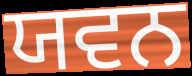
ਯਵਨ